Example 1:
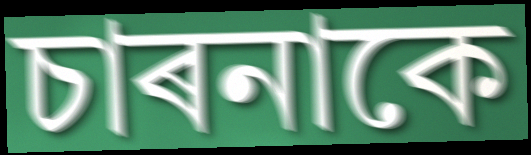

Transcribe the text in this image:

চাৰনাকে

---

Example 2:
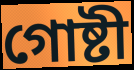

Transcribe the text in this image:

গোষ্টী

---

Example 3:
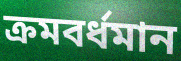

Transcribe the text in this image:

ক্ৰমবৰ্ধমান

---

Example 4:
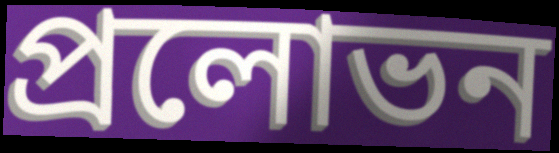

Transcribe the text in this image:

প্ৰলোভন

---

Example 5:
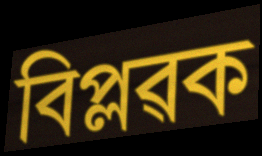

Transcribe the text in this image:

বিপ্লৱক